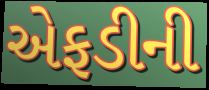
એફડીની